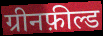
ग्रीनफ़ील्ड